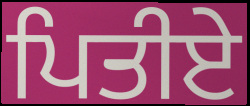
ਪਿਤੀਏ